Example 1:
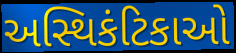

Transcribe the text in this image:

અસ્થિકંટિકાઓ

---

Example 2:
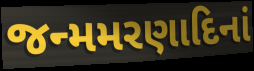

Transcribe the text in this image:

જન્મમરણાદિનાં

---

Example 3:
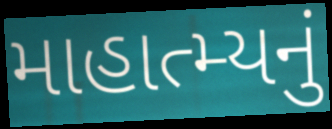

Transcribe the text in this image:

માહાત્મ્યનું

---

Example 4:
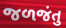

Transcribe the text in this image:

જળજંતુ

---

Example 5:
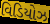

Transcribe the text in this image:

વિડિયોઝ